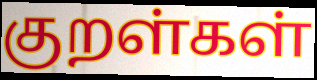
குறள்கள்